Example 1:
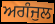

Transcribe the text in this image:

ਅਗੰਜੁਲ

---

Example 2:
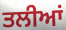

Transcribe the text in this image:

ਤਲੀਆਂ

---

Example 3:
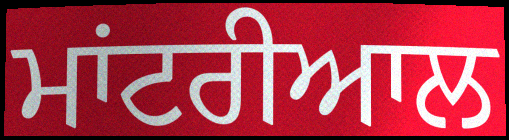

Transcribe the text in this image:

ਮਾਂਟਰੀਆਲ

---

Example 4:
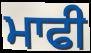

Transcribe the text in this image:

ਮਾਫੀ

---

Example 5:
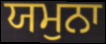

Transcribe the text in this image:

ਯਮੁਨਾ